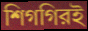
শিগগিরই